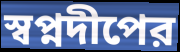
স্বপ্নদীপের